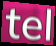
tel